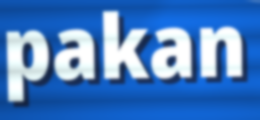
pakan